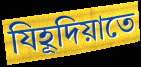
যিহূদিয়াতে